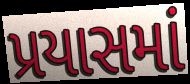
પ્રયાસમાં